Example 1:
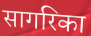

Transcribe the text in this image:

सागरिका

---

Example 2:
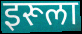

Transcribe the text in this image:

इरूला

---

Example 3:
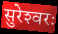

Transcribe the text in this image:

सुरेश्वरः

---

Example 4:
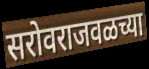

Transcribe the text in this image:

सरोवराजवळच्या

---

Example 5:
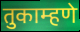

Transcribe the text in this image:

तुकाम्हणे